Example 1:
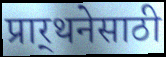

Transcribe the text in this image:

प्रार्थनेसाठी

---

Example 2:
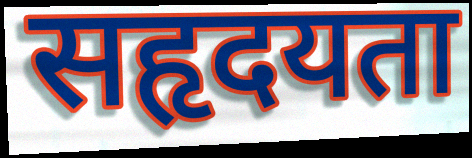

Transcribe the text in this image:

सहृदयता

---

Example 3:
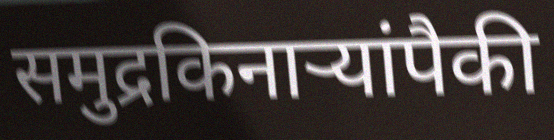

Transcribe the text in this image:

समुद्रकिनाऱ्यांपैकी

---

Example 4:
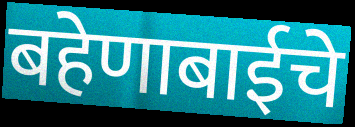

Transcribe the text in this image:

बहेणाबाईचे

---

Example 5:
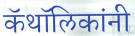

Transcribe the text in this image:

कॅथॉलिकांनी